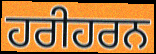
ਹਰੀਹਰਨ